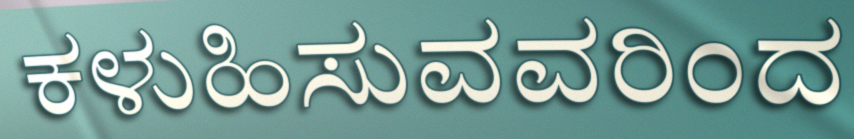
ಕಳುಹಿಸುವವರಿಂದ